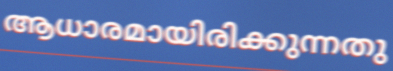
ആധാരമായിരിക്കുന്നതു